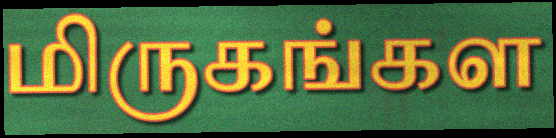
மிருகங்கள